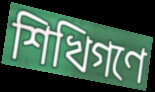
শিখিগণে